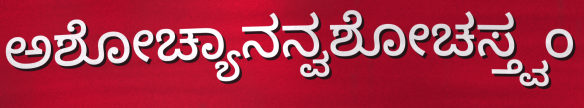
ಅಶೋಚ್ಯಾನನ್ವಶೋಚಸ್ತ್ವಂ